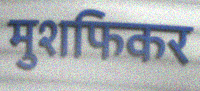
मुशफिकर